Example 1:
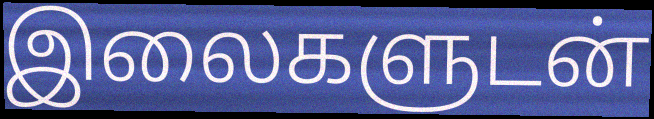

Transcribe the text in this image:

இலைகளுடன்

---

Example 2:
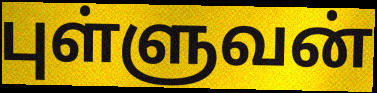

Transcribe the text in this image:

புள்ளுவன்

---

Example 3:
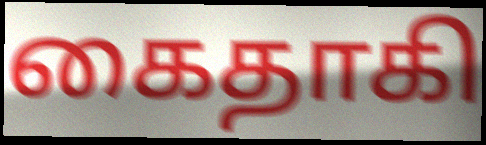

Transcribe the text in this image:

கைதாகி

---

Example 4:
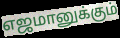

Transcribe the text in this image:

எஜமானுக்கும்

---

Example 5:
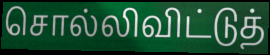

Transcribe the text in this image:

சொல்லிவிட்டுத்